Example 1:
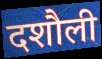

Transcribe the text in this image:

दशौली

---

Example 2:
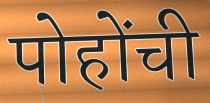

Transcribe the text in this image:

पोहोंची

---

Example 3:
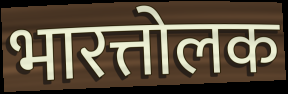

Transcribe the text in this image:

भारत्तोलक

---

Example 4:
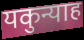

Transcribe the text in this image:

यकुन्याह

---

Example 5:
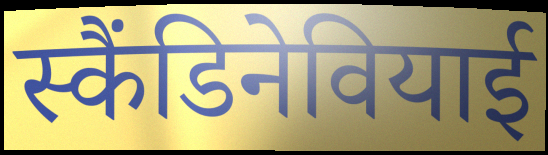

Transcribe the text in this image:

स्कैंडिनेवियाई